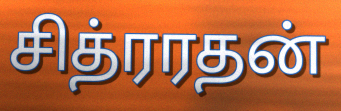
சித்ரரதன்